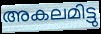
അകലമിട്ടു